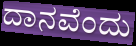
ದಾನವೆಂದು